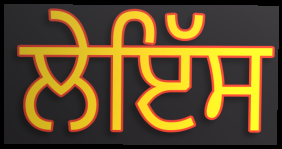
ਲੇਇੱਸ